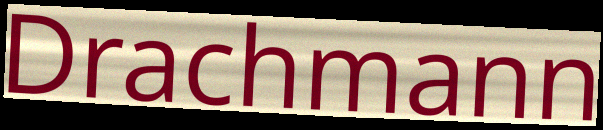
Drachmann